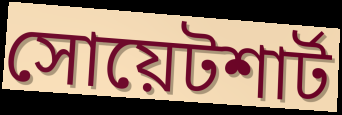
সোয়েটশার্ট